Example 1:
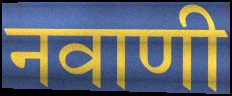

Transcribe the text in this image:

नवाणी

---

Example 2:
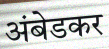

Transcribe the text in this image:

अंबेडकर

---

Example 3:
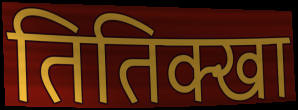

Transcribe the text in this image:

तितिक्खा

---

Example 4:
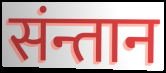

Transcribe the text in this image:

संन्तान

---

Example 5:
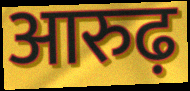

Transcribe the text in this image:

आरुढ़